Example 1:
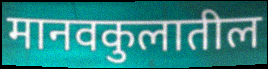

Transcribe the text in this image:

मानवकुलातील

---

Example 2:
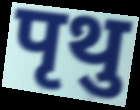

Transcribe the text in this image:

पृथु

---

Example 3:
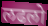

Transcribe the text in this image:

लढलो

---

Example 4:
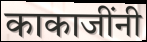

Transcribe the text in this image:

काकाजींनी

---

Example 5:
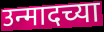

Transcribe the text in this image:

उन्मादच्या